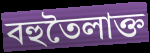
বহুতৈলাক্ত